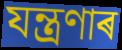
যন্ত্ৰণাৰ